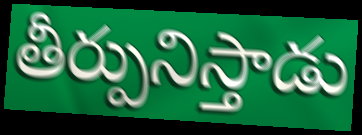
తీర్పునిస్తాడు